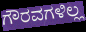
ಗೌರವಗಳಿಲ್ಲ